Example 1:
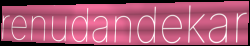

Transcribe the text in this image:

renudandekar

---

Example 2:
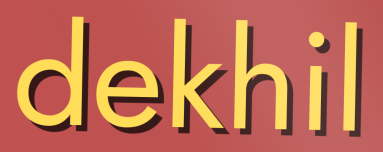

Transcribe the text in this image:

dekhil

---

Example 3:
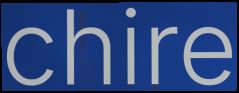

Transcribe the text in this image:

chire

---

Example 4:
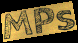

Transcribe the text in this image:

MPs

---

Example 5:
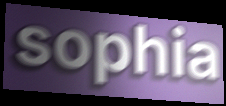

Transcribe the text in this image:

sophia